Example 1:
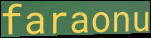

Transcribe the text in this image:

faraonu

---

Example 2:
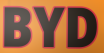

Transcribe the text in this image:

BYD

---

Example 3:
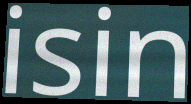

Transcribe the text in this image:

isin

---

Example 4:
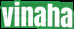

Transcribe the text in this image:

vinaha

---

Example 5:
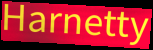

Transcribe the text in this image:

Harnetty